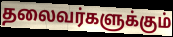
தலைவர்களுக்கும்